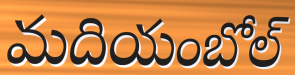
మదియంబోల్